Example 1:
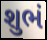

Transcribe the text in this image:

શુભં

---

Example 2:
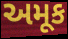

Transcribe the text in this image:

અમૂક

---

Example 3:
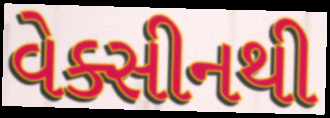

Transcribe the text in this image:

વેક્સીનથી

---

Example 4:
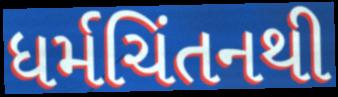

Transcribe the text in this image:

ધર્મચિંતનથી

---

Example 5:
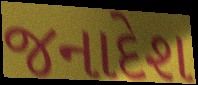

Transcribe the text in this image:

જનાદેશ